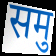
समु